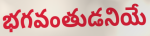
భగవంతుడనియే